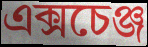
এক্সচেঞ্জ